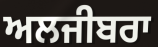
ਅਲਜੀਬਰਾ